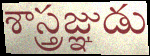
శాస్త్రజ్ఞుడు